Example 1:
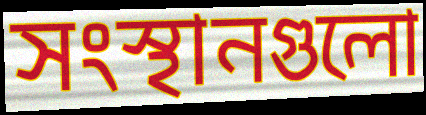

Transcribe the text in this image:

সংস্থানগুলো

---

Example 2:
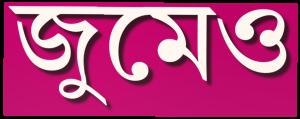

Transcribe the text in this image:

জুমেও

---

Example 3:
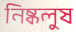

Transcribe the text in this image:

নিষ্কলুষ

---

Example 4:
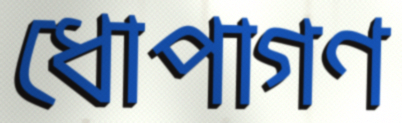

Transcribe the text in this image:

ধোপাগণ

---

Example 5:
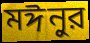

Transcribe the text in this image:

মঈনুর